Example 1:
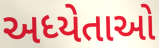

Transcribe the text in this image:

અધ્યેતાઓ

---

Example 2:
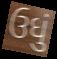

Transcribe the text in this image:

ઉધું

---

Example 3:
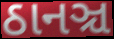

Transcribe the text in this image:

ઠાનઞ્ચ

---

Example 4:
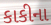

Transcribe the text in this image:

કાકીના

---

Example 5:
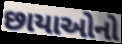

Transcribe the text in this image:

છાયાઓનો